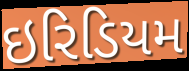
ઇરિડિયમ